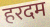
हरदम